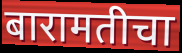
बारामतीचा